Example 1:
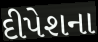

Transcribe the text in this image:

દીપેશના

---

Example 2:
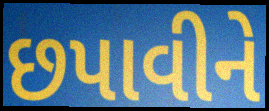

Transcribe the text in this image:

છપાવીને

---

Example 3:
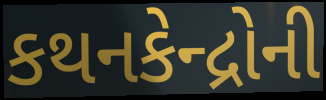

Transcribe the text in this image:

કથનકેન્દ્રોની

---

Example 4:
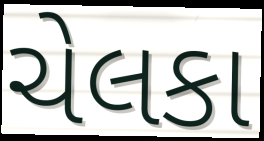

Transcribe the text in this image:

ચેલકા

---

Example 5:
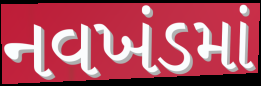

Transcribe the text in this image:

નવખંડમાં